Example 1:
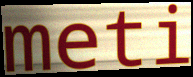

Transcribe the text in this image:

meti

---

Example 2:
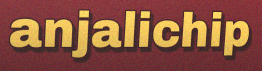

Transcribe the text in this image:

anjalichip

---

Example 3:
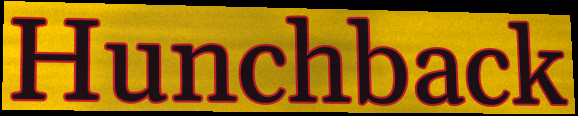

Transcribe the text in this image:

Hunchback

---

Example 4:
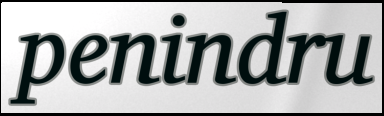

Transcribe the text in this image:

penindru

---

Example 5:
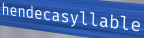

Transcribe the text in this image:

hendecasyllable